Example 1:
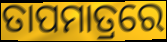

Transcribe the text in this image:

ତାପମାତ୍ରରେ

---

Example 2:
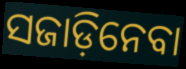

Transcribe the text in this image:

ସଜାଡ଼ିନେବା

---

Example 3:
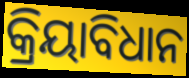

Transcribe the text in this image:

କ୍ରିୟାବିଧାନ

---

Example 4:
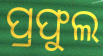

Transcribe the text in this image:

ପ୍ରଫୁଲ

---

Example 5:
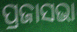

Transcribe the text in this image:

ପ୍ରଜାସଭା